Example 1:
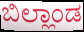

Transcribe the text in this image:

ಬಿಲ್ಲಾಂಡ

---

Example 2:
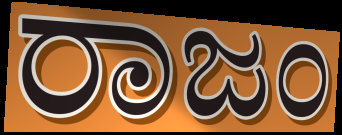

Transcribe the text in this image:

ರಾಜಂ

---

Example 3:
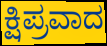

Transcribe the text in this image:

ಕ್ಷಿಪ್ರವಾದ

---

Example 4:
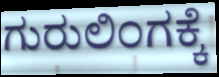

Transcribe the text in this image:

ಗುರುಲಿಂಗಕ್ಕೆ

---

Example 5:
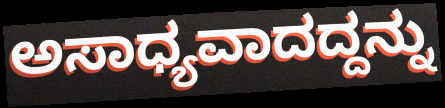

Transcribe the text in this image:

ಅಸಾಧ್ಯವಾದದ್ದನ್ನು